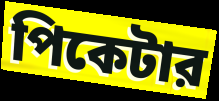
পিকেটার